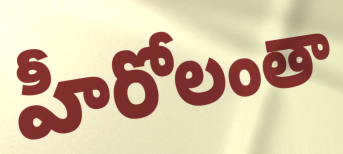
హీరోలంతా